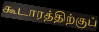
கூடாரத்திற்குப்